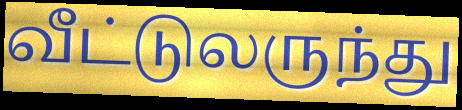
வீட்டுலருந்து